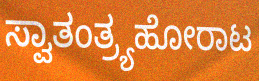
ಸ್ವಾತಂತ್ರ್ಯಹೋರಾಟ